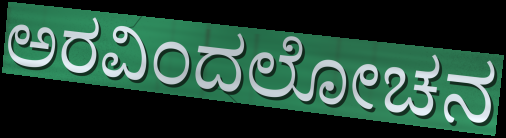
ಅರವಿಂದಲೋಚನ